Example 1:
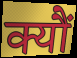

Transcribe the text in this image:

क्यौं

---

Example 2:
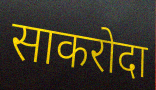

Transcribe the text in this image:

साकरोदा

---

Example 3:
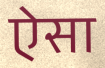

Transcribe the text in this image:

ऐेसा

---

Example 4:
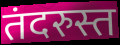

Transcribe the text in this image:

तंदरुस्त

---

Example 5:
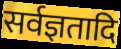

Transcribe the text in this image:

सर्वज्ञतादि